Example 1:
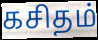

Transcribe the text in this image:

கசிதம்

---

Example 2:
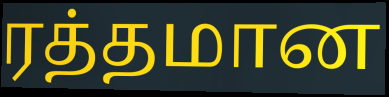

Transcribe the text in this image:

ரத்தமான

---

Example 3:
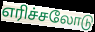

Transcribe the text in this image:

எரிச்சலோடு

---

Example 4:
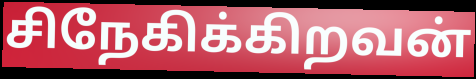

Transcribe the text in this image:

சிநேகிக்கிறவன்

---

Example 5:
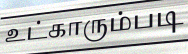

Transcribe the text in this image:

உட்காரும்படி